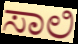
ಸಾಲಿ